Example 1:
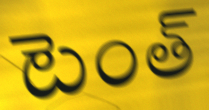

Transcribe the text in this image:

టెంత్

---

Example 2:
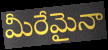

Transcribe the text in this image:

మీరేమైనా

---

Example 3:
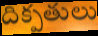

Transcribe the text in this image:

దిక్పతులు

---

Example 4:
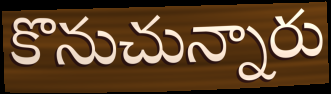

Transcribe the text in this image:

కొనుచున్నారు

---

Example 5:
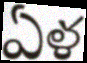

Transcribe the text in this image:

ఏళ